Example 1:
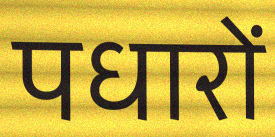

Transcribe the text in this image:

पधारों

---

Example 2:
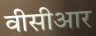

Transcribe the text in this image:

वीसीआर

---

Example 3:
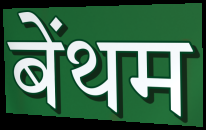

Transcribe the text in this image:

बेंथम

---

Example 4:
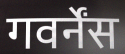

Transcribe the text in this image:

गवर्नेंस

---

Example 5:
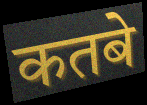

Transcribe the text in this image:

कतबे